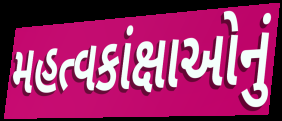
મહત્વકાંક્ષાઓનું